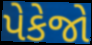
પેકેજો